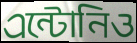
এন্টোনিও